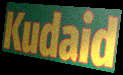
Kudaid